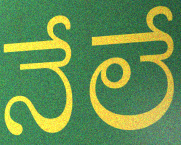
నేలే